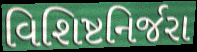
વિશિષ્ટનિર્જરા